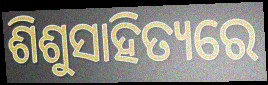
ଶିଶୁସାହିତ୍ୟରେ